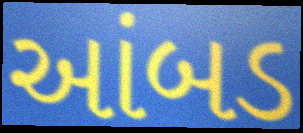
આંબડ